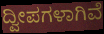
ದ್ವೀಪಗಳಾಗಿವೆ